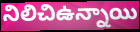
నిలిచిఉన్నాయి